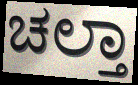
ಚಲ್ತಾ